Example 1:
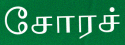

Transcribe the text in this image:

சோரச்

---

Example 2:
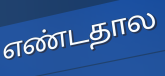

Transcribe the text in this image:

எண்டதால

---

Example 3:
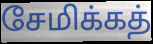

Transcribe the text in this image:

சேமிக்கத்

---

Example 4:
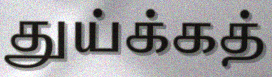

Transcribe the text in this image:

துய்க்கத்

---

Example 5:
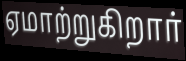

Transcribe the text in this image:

ஏமாற்றுகிறார்